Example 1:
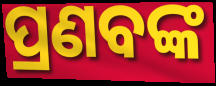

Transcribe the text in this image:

ପ୍ରଣବଙ୍କ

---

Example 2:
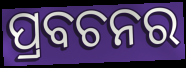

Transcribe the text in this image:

ପ୍ରବଚନର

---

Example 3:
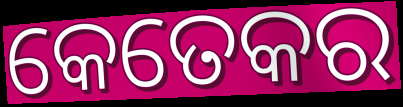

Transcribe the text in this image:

କେତେକର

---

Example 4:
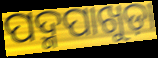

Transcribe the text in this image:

ପଦ୍ମପାଖୁଡ଼ା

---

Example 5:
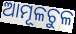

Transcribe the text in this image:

ଆମୂଳଚୁଳ